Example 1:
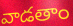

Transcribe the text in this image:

వాడతాం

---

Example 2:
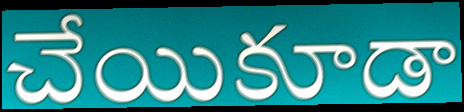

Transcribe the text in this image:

చేయికూడా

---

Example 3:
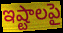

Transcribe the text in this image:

ఇష్టాలపై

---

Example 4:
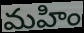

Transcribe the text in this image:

మహిం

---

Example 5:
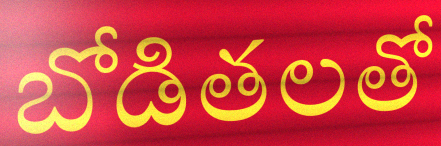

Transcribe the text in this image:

బోడితలతో